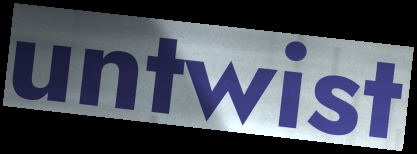
untwist